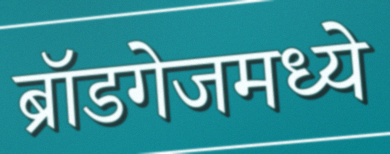
ब्रॉडगेजमध्ये